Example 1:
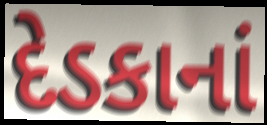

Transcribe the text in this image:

દેડકાનાં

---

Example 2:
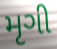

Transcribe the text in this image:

મૃગી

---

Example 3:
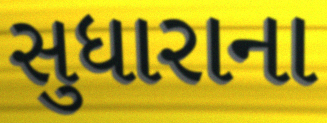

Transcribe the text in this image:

સુધારાના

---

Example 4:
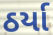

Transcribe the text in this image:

ઠર્યા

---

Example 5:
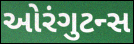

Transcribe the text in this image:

ઓરંગુટન્સ